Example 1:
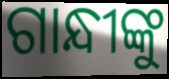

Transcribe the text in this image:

ଗାନ୍ଧୀଙ୍କୁ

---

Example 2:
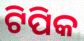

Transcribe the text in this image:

ଟିପିକ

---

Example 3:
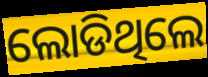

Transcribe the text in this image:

ଲୋଡିଥିଲେ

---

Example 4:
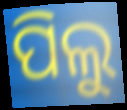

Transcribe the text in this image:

ପିଲୁ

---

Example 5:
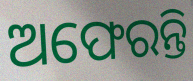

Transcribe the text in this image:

ଅଫେରନ୍ତି